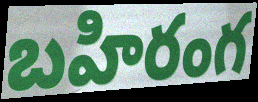
బహిరంగ